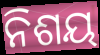
ନିଶୟ